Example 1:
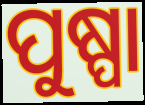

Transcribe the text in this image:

ପୁଷ୍ପା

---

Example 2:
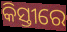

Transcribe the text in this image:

କିସ୍ତୀରେ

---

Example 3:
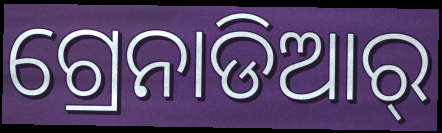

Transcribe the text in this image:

ଗ୍ରେନାଡିଆର୍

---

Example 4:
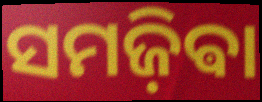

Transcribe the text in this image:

ସମଜ଼ିଵା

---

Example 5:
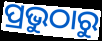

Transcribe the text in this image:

ପ୍ରଭୁଠାରୁ